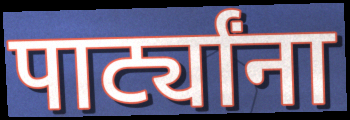
पार्ट्यांना